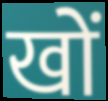
खों